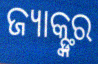
ଜ୍ୟାକ୍ଙ୍କର